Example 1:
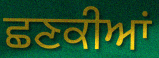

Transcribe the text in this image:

ਛਣਕੀਆਂ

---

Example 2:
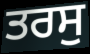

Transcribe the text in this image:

ਤਰਸੁ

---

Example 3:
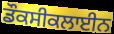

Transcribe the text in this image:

ਡੌਕਸੀਕਲਾਈਨ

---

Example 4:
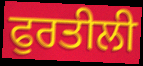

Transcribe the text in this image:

ਫੁਰਤੀਲੀ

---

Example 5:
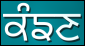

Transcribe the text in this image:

ਕੰਙਣ